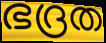
ഭദ്രത